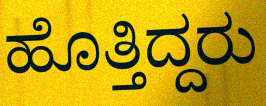
ಹೊತ್ತಿದ್ದರು